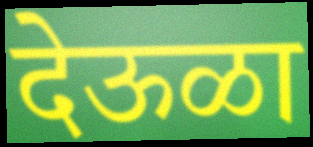
देऊळा